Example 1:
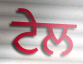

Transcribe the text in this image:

ਟੇਲ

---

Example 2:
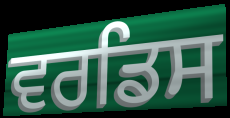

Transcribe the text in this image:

ਵਰਡਿਸ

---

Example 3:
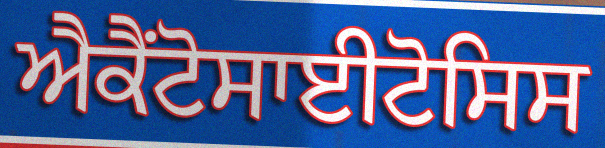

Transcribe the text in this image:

ਐਕੈਂਟੋਸਾਈਟੋਸਿਸ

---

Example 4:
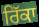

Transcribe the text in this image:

ਰਿੱਕਾ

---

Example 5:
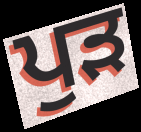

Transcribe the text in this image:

ਪੁੜ